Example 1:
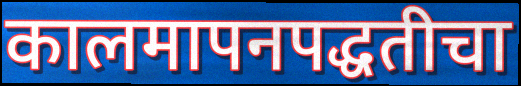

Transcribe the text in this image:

कालमापनपद्धतीचा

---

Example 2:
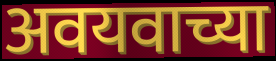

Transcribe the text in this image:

अवयवाच्या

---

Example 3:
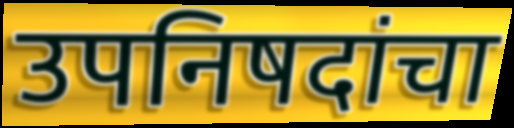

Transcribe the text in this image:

उपनिषदांचा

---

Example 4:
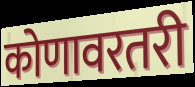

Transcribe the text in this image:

कोणावरतरी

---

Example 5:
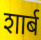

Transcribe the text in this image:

शार्ब